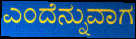
ಎಂದೆನ್ನುವಾಗ